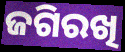
ଜଗିରଖି